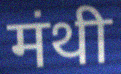
मंथी